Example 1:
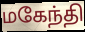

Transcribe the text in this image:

மகேந்தி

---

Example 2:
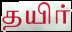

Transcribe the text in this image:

தயிர்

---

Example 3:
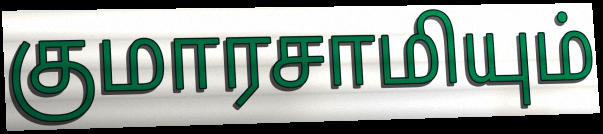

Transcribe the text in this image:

குமாரசாமியும்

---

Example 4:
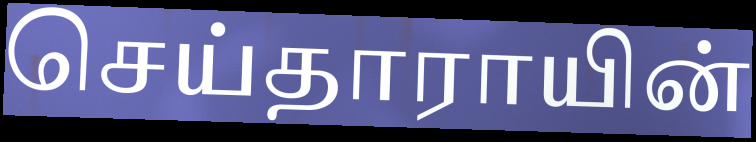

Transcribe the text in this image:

செய்தாராயின்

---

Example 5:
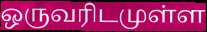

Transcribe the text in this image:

ஒருவரிடமுள்ள